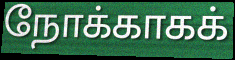
நோக்காகக்